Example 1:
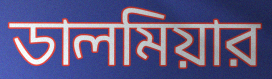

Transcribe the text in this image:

ডালমিয়ার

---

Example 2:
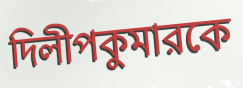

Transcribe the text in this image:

দিলীপকুমারকে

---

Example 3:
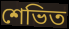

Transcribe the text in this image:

শেভিত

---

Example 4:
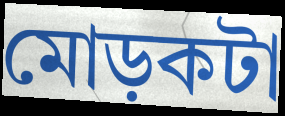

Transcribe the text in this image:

মোড়কটা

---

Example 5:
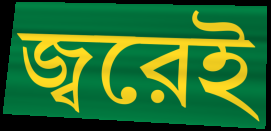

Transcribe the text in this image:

জ্বরেই